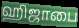
ஹிஜாபை